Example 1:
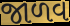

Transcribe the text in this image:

જાળવ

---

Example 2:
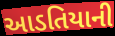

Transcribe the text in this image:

આડતિયાની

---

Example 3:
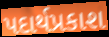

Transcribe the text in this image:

પદાર્થપ્રકાશ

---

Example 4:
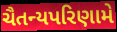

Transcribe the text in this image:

ચૈતન્યપરિણામે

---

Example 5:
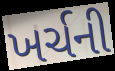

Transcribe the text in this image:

ખર્ચની